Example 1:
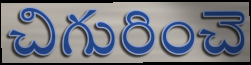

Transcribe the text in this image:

చిగురించె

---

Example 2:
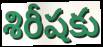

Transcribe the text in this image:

శిరీషకు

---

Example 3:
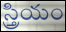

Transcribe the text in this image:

స్త్రియం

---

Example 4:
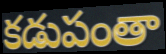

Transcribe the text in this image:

కడుపంతా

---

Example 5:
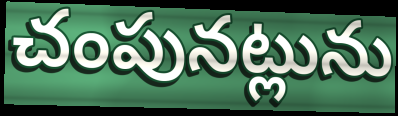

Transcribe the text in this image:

చంపునట్లును